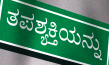
ತಪಶ್ಯಕ್ತಿಯನ್ನು